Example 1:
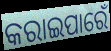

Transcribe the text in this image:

କରାଇପାରେଁ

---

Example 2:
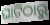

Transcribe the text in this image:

ଘାଟିଠାରୁ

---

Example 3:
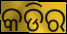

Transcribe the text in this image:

କଡିର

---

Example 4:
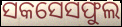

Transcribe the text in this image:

ସକସେସଫୁଲ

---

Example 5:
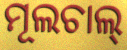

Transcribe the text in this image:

ମୂଲଚାଲ୍